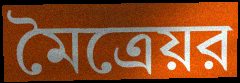
মৈত্রেয়র